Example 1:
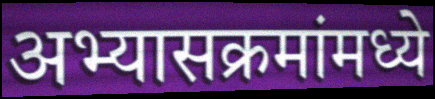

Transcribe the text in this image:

अभ्यासक्रमांमध्ये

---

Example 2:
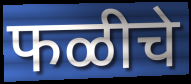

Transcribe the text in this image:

फळीचे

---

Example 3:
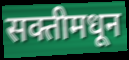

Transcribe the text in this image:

सक्तीमधून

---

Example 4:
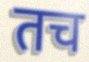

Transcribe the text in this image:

तच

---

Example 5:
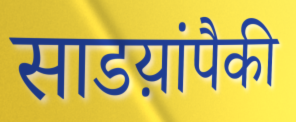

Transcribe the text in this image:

साडय़ांपैकी